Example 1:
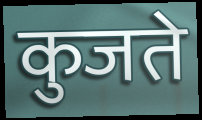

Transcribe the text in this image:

कुजते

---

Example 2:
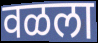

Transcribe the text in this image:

वळला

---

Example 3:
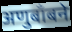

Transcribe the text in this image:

अणुबाँबने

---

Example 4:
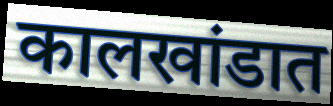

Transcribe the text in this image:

कालखांडात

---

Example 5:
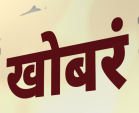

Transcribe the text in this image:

खोबरं